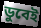
ডুবেই